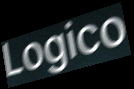
Logico